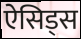
ऐसिड्स